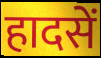
हादसें